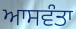
ਆਸਵੰਤਾ